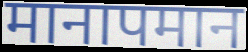
मानापमान